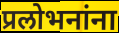
प्रलोभनांना